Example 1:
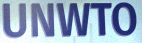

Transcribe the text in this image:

UNWTO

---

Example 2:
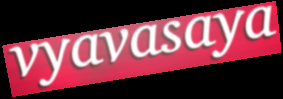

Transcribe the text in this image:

vyavasaya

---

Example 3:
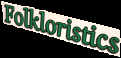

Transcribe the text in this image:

Folkloristics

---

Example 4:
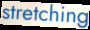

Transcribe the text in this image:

stretching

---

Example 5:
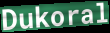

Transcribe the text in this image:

Dukoral